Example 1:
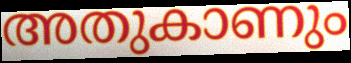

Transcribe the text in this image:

അതുകാണും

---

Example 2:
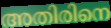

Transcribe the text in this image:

അതിരിനെ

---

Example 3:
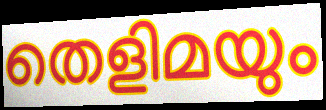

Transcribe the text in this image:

തെളിമയും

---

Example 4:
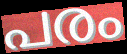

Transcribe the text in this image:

പരം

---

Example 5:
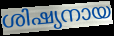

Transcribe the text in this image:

ശിഷ്യനായ